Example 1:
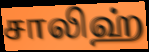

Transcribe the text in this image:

சாலிஹ்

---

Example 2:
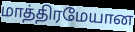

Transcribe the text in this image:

மாத்திரமேயான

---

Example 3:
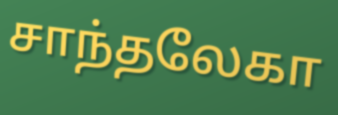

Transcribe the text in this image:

சாந்தலேகா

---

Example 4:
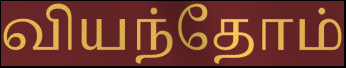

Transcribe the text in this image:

வியந்தோம்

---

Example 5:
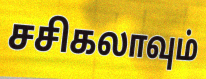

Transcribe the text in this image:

சசிகலாவும்